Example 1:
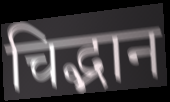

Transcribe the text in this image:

चिद्भान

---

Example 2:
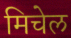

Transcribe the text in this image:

मिचेल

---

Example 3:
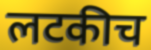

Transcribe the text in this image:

लटकीच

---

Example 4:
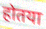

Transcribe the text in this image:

होतया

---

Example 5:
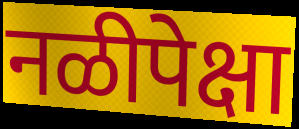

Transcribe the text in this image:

नळीपेक्षा